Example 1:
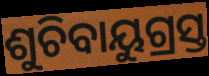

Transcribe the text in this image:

ଶୁଚିବାୟୁଗ୍ରସ୍ତ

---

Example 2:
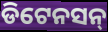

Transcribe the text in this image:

ଡିଟେନସନ୍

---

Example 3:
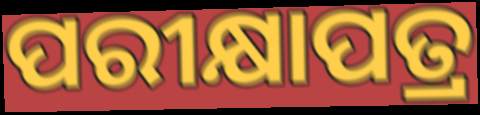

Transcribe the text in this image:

ପରୀକ୍ଷାପତ୍ର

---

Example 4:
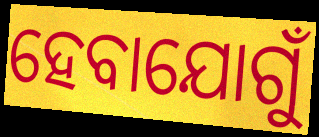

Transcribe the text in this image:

ହେବାଯୋଗୁଁ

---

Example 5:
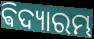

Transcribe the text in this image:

ଵିଦ୍ୟାରମ୍ଭ